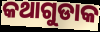
କଥାଗୁଡାକ